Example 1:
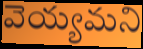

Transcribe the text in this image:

వెయ్యమని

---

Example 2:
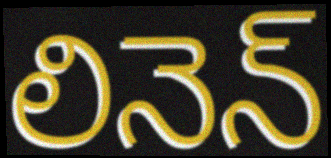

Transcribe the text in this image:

లినెన్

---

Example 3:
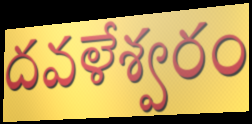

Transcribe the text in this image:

దవళేశ్వరం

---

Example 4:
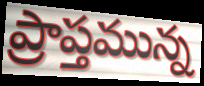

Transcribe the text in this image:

ప్రాప్తమున్న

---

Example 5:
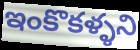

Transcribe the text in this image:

ఇంకొకళ్ళని